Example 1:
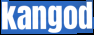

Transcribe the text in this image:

kangod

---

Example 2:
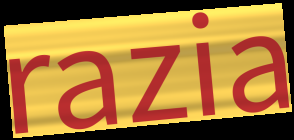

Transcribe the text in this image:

razia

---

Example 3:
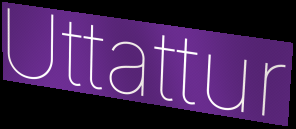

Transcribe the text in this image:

Uttattur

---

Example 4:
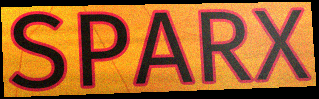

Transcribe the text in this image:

SPARX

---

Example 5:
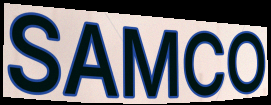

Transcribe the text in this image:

SAMCO